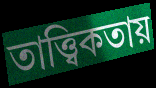
তাত্ত্বিকতায়